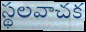
స్థలవాచక